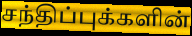
சந்திப்புக்களின்